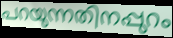
പറയുന്നതിനപ്പുറം